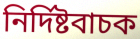
নিৰ্দিষ্টবাচক